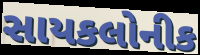
સાયકલોનીક